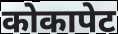
कोकापेट